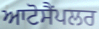
ਆਟੋਸੈਂਪਲਰ